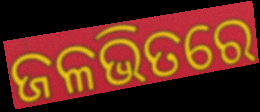
ଜଳଭିତରେ